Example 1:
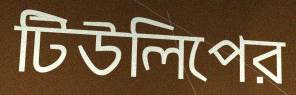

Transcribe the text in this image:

টিউলিপের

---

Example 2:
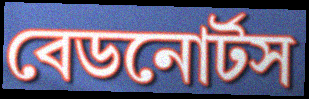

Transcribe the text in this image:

বেডনোর্টস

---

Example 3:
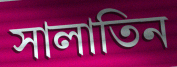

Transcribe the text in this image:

সালাতিন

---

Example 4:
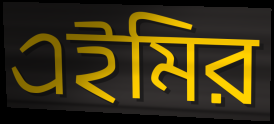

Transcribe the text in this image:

এইমির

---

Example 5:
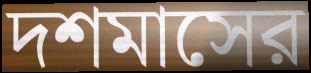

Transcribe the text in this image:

দশমাসের